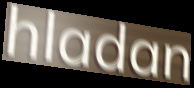
hladan